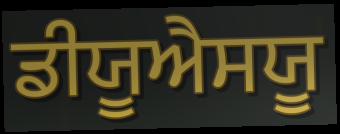
ਡੀਯੂਐਸਯੂ